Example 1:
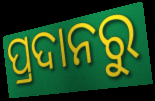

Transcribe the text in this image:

ପ୍ରଦାନରୁ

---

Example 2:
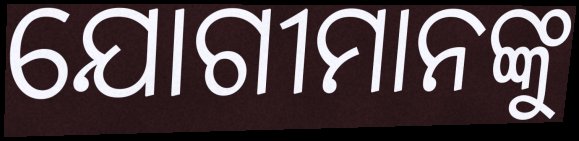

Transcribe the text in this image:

ଯୋଗୀମାନଙ୍କୁ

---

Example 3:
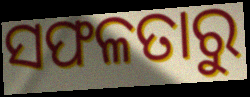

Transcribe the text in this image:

ସଫଳତାରୁ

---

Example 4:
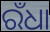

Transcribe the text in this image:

ରଁଧା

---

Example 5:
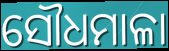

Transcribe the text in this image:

ସୌଧମାଳା